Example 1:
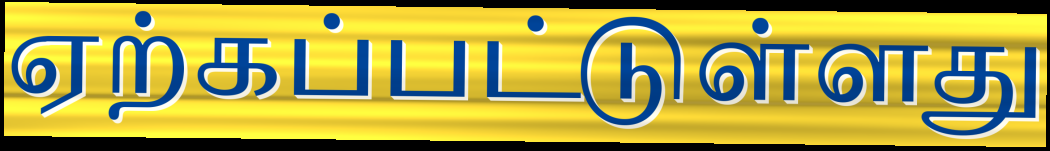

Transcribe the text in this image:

ஏற்கப்பட்டுள்ளது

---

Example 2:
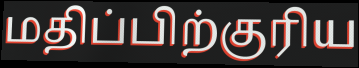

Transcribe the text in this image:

மதிப்பிற்குரிய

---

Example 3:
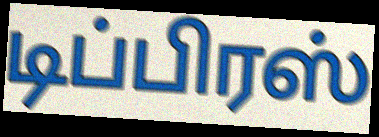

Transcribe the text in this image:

டிப்பிரஸ்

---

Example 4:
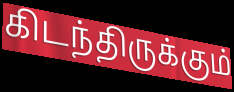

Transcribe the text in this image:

கிடந்திருக்கும்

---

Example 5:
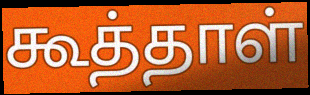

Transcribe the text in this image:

கூத்தாள்